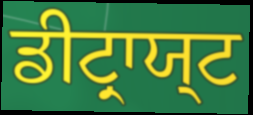
ਡੀਟ੍ਰਾਯ੍ਟ